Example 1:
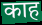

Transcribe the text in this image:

काह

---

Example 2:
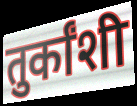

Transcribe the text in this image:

तुर्कांशी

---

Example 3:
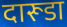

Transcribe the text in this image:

दारूडा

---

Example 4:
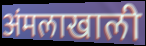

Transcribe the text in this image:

अंमलाखाली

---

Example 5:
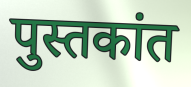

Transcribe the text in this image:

पुस्तकांत